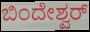
ಬಿಂದೇಶ್ವರ್